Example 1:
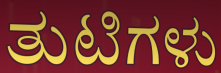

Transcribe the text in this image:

ತುಟಿಗಳು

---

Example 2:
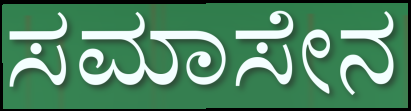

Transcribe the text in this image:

ಸಮಾಸೇನ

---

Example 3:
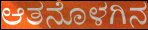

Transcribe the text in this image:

ಆತನೊಳಗಿನ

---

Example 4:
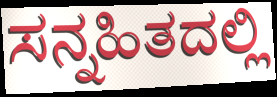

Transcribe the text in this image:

ಸನ್ನಹಿತದಲ್ಲಿ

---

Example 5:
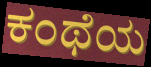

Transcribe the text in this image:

ಕಂಥೆಯ